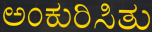
ಅಂಕುರಿಸಿತು